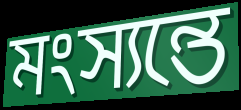
মংস্যন্তে